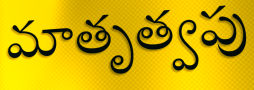
మాతృత్వపు